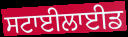
ਸਟਾਈਲਾਈਡ